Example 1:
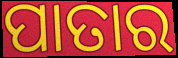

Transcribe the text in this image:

ପାତାର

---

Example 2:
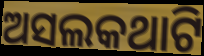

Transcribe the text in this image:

ଅସଲକଥାଟି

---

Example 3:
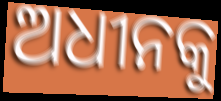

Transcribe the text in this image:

ଅଧୀନକୁ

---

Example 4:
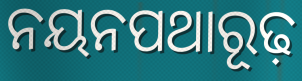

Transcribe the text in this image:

ନୟନପଥାରୂଢ଼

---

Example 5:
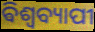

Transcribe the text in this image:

ଵିଶ୍ୱବ୍ୟାପୀ